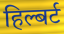
हिल्बर्ट